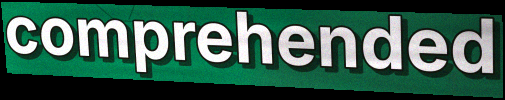
comprehended